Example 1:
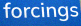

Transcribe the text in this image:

forcings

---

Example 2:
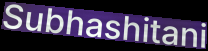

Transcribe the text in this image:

Subhashitani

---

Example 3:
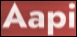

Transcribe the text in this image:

Aapi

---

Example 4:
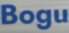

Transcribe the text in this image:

Bogu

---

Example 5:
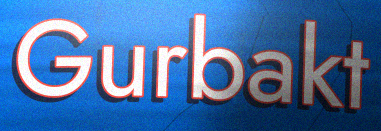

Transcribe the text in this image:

Gurbakt